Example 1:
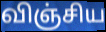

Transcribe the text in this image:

விஞ்சிய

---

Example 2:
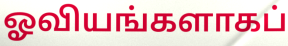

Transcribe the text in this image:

ஓவியங்களாகப்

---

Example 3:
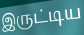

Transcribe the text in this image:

இருட்டிய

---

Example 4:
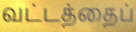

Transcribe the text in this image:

வட்டத்தைப்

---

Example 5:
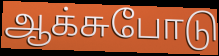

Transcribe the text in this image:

ஆக்சுபோடு